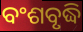
ବଂଶବୃଦ୍ଧି